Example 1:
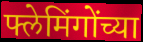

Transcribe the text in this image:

फ्लेमिंगोंच्या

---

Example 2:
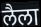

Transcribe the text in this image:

लैला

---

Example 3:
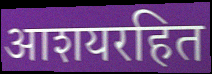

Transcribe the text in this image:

आशयरहित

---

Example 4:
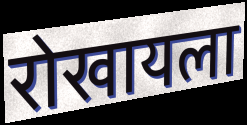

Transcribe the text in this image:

रोखायला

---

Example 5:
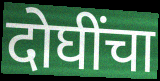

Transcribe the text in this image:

दोघींचा